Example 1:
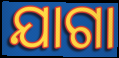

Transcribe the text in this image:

ଯାଗା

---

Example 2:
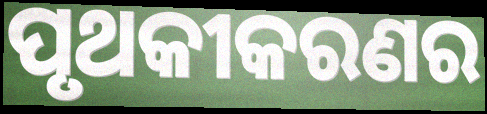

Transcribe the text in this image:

ପୃଥକୀକରଣର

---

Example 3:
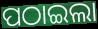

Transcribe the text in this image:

ପଠାଇଲା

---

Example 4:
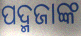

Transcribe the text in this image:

ପଦ୍ମଜାଙ୍କ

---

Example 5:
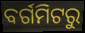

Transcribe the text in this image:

ବର୍ଗମିଟରୁ